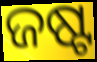
ଜଷ୍ଟ